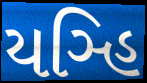
યઞ્હિ